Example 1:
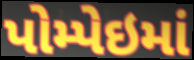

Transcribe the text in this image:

પોમ્પેઇમાં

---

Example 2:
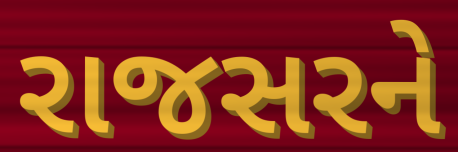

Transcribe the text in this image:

રાજસરને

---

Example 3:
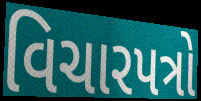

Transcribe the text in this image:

વિચારપત્રો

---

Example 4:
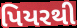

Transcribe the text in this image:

પિયરથી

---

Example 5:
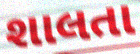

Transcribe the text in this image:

શાલતા